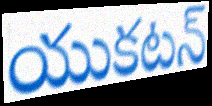
యుకటన్